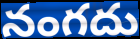
నంగదు